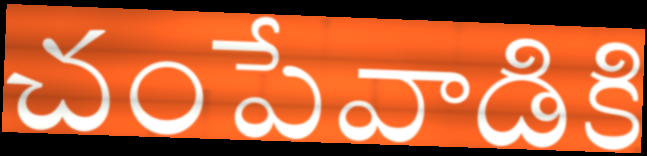
చంపేవాడికి